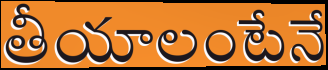
తీయాలంటేనే